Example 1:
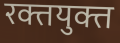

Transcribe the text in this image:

रक्तयुक्त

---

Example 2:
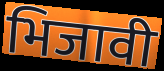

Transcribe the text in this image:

भिजावी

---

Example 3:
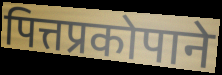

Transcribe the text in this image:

पित्तप्रकोपाने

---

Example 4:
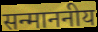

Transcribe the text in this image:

सन्माननीय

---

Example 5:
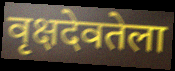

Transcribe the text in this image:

वृक्षदेवतेला